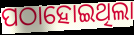
ପଠାହୋଇଥିଲା